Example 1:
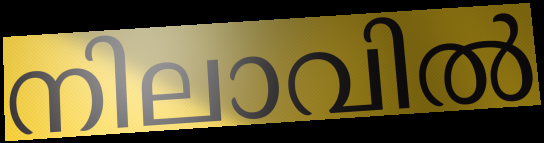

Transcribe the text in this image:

നിലാവിൽ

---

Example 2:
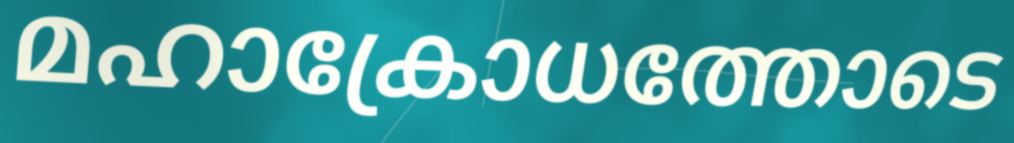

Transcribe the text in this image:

മഹാക്രോധത്തോടെ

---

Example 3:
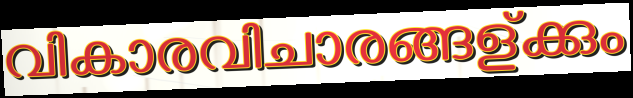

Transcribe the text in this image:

വികാരവിചാരങ്ങള്ക്കും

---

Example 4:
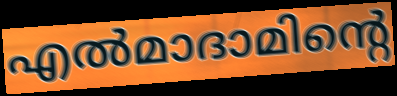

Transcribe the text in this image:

എൽമാദാമിന്റെ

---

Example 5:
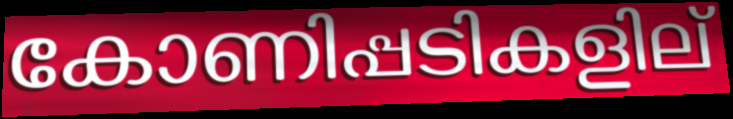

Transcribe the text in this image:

കോണിപ്പടികളില്